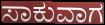
ಸಾಕುವಾಗ